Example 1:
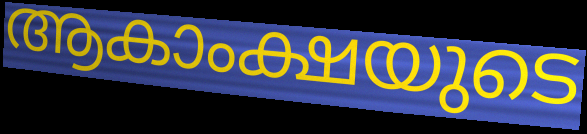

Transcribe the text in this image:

ആകാംക്ഷയുടെ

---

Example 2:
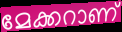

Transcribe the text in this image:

മേക്കറാണ്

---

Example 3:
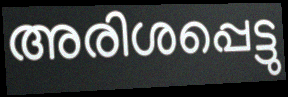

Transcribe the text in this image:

അരിശപ്പെട്ടു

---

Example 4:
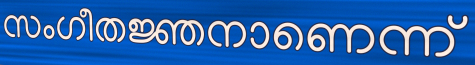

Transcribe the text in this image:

സംഗീതജ്ഞനാണെന്ന്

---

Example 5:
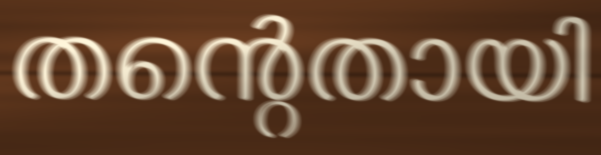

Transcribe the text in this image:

തന്റെതായി